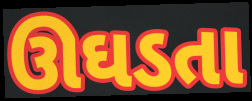
ઊઘડતા